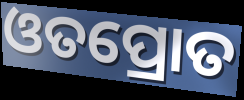
ଓତପ୍ରୋତ